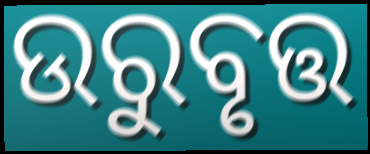
ଉରୁବୃତ୍ତ